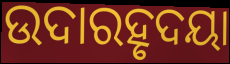
ଉଦାରହୃଦୟା